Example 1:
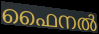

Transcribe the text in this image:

ഫൈനൽ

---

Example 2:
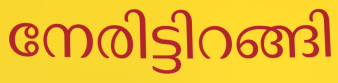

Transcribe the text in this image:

നേരിട്ടിറങ്ങി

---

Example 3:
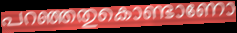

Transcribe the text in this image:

പറഞ്ഞതുകൊണ്ടാണോ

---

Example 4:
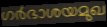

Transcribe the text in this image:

ഗർഭാശയമുഖ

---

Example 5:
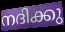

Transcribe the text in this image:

നദിക്കു